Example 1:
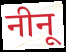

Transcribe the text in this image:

नीनू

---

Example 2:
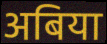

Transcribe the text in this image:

अबिया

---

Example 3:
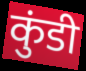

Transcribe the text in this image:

कुंडी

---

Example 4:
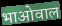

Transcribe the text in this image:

भाओवाल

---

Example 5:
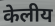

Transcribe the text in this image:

केलीय